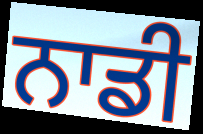
ਨਾਡੀ